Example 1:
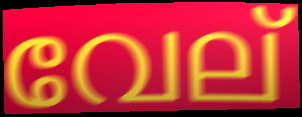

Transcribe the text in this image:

വേല്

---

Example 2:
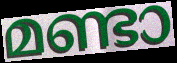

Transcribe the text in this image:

മണ്ടാ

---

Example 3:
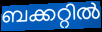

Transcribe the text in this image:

ബക്കറ്റിൽ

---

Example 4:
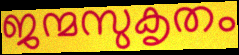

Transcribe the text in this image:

ജന്മസുകൃതം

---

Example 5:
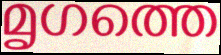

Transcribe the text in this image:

മൃഗത്തെ